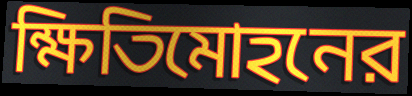
ক্ষিতিমোহনের